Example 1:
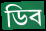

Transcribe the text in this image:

ডিব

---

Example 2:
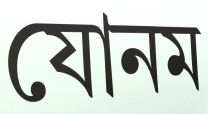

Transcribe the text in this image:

যোনম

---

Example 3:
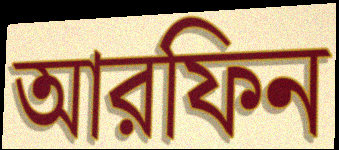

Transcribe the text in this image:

আরফিন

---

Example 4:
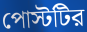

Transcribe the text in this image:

পোস্টটির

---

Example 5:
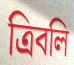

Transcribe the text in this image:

ত্রিবলি